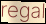
regal